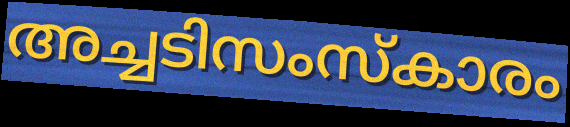
അച്ചടിസംസ്കാരം